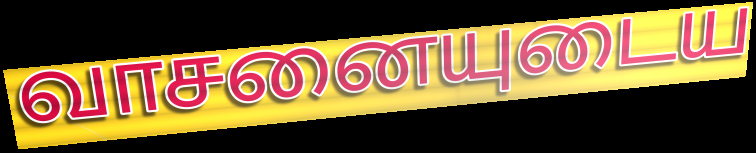
வாசனையுடைய